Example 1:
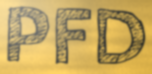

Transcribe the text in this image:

PFD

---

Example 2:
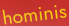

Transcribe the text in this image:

hominis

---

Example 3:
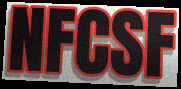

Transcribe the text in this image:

NFCSF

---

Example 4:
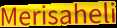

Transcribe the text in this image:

Merisaheli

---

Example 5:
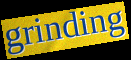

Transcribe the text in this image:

grinding